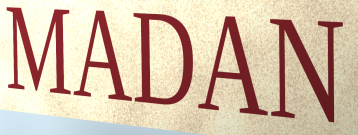
MADAN